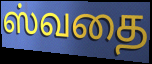
ஸ்வதை